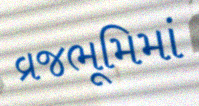
વ્રજભૂમિમાં